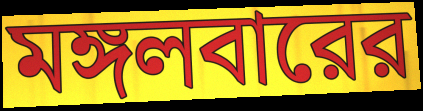
মঙ্গলবারের